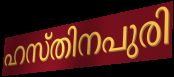
ഹസ്തിനപുരി